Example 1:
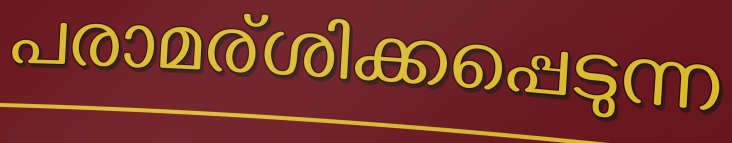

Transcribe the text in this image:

പരാമര്ശിക്കപ്പെടുന്ന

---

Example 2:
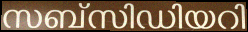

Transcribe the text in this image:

സബ്സിഡിയറി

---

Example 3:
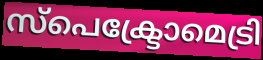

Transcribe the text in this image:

സ്പെക്ട്രോമെട്രി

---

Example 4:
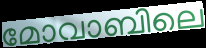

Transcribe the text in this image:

മോവാബിലെ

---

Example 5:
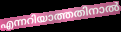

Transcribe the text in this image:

എന്നറിയാത്തതിനാൽ